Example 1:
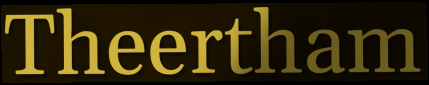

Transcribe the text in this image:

Theertham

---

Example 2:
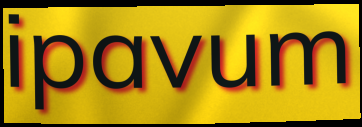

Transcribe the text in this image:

ipavum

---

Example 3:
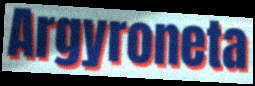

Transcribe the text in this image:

Argyroneta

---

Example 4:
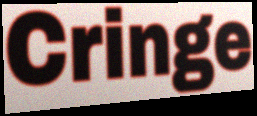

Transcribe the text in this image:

Cringe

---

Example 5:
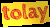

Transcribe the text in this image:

tolay